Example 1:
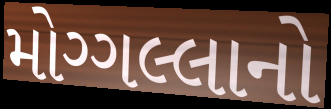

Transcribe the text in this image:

મોગ્ગલ્લાનો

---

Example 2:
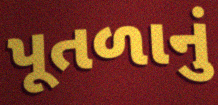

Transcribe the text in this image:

પૂતળાનું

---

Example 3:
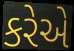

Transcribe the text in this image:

કરેએ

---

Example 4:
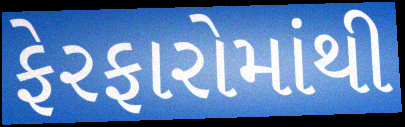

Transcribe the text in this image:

ફેરફારોમાંથી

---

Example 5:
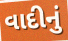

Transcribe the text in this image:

વાદીનું